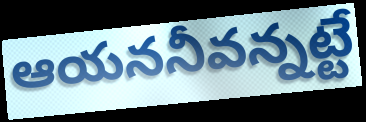
ఆయననీవన్నట్టే